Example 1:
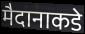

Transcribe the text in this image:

मैदानाकडे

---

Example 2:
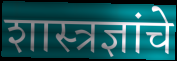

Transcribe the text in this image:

शास्त्रज्ञांचे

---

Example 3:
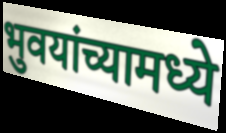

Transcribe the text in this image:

भुवयांच्यामध्ये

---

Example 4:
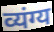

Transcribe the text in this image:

व्यंग्य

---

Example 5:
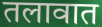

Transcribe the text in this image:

तलावात